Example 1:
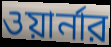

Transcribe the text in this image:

ওয়ার্নার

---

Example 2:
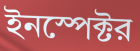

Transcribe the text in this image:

ইনস্পেক্টর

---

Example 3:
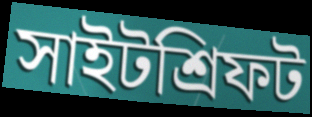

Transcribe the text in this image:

সাইটশ্রিফট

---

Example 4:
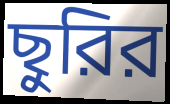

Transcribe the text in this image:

ছুরির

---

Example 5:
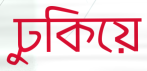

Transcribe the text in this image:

ঢুকিয়ে